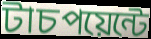
টাচপয়েন্টে